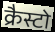
क्रैस्टो